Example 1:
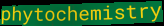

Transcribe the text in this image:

phytochemistry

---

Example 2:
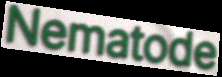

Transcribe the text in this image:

Nematode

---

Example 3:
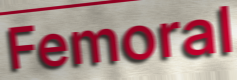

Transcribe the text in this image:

Femoral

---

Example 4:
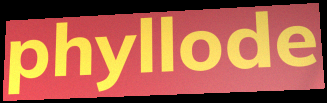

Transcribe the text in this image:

phyllode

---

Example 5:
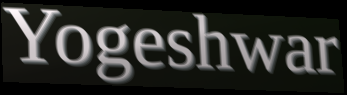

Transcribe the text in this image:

Yogeshwar